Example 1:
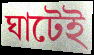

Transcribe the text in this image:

ঘাটেই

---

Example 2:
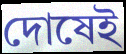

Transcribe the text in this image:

দোষেই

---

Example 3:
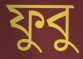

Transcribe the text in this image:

ফুবু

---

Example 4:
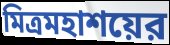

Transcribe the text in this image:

মিত্রমহাশয়ের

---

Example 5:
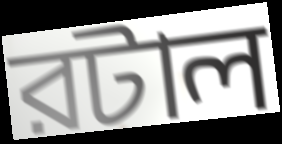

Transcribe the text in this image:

রটাল